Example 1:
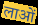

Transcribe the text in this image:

लाओं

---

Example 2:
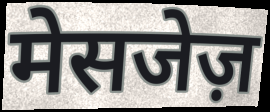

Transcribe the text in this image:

मेसजेज़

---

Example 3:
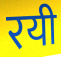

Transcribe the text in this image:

रयी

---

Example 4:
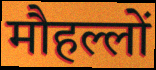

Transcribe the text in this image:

मौहल्लों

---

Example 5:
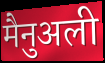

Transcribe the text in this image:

मैनुअली